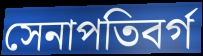
সেনাপতিবর্গ